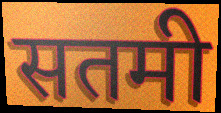
सतमी